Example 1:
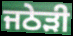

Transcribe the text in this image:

ਜਠੇੜੀ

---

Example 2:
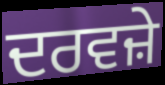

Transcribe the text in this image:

ਦਰਵਜ਼ੇ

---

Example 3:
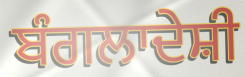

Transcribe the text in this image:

ਬੰਗਲਾਦੇਸ਼ੀ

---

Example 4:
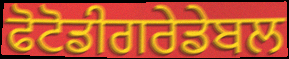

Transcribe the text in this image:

ਫੋਟੋਡੀਗਰੇਡੇਬਲ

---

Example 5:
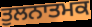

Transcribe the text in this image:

ਤੁਲਨਾਤਮਕ